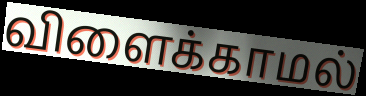
விளைக்காமல்